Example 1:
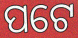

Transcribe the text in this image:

ପଟେ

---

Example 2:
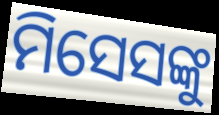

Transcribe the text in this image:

ମିସେସଙ୍କୁ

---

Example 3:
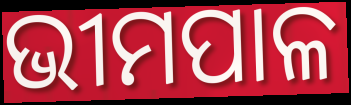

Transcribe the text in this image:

ଭୀମପାଳ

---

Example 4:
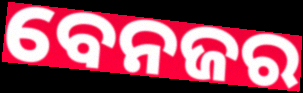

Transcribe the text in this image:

ବେନଜର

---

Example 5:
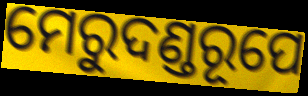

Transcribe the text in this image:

ମେରୁଦଣ୍ଡରୂପେ